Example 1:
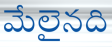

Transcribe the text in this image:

మేలైనది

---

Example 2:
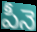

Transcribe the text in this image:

పీనె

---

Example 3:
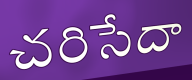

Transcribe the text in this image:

చరిసేదా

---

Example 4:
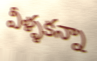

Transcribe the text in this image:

వీళ్ళకన్నా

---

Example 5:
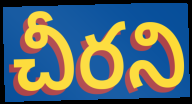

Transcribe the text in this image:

చీరని